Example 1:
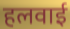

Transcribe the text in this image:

हलवाई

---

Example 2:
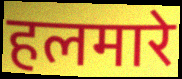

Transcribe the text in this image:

हलमारे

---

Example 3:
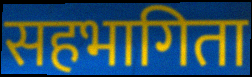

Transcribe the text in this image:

सहभागिता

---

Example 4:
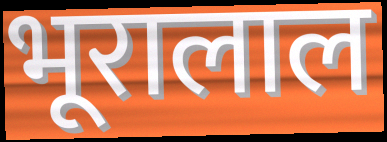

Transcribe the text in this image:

भूरालाल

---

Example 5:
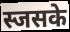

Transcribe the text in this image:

स्जसके